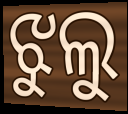
ଝୁଲୁ